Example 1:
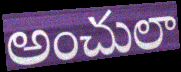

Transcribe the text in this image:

అంచులా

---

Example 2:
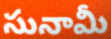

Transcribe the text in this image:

సునామీ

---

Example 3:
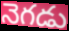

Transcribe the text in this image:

నెగడు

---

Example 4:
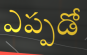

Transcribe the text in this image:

ఎప్పడో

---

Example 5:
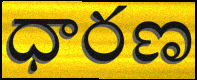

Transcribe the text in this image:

ధారణ